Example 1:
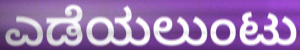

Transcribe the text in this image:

ಎಡೆಯಲುಂಟು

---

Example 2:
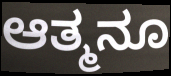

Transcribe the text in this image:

ಆತ್ಮನೂ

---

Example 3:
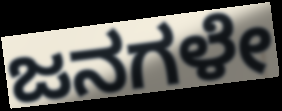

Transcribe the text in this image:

ಜನಗಳೇ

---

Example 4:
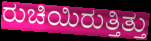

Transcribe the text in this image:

ರುಚಿಯಿರುತ್ತಿತ್ತು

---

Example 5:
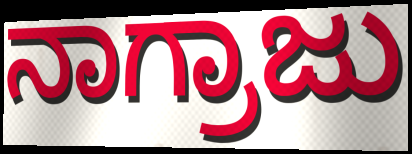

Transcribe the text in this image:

ನಾಗ್ರಾಜು